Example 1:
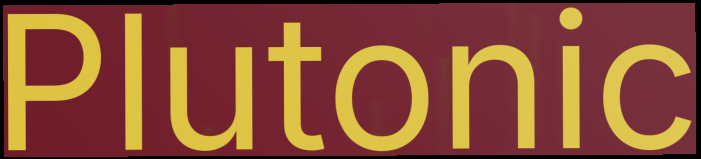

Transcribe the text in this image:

Plutonic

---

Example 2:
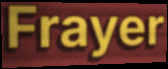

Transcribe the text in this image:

Frayer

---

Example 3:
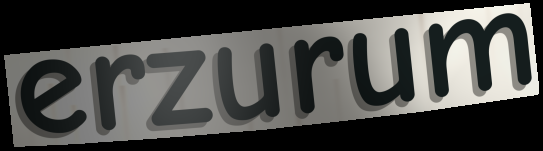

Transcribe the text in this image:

erzurum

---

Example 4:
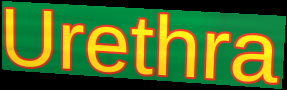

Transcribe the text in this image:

Urethra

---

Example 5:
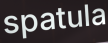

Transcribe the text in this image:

spatula